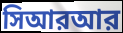
সিআরআর